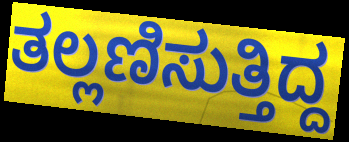
ತಲ್ಲಣಿಸುತ್ತಿದ್ದ